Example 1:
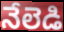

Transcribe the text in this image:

నేలెడి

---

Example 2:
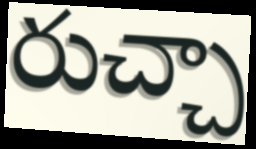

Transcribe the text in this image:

రుచ్చా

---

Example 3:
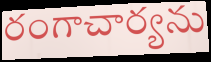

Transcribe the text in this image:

రంగాచార్యను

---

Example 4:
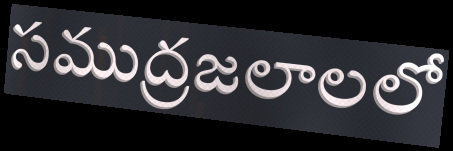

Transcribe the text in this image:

సముద్రజలాలలో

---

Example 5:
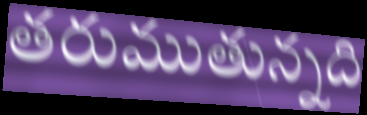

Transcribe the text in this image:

తరుముతున్నది